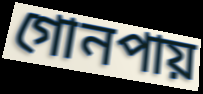
গোনপায়